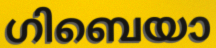
ഗിബെയാ